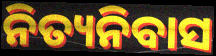
ନିତ୍ୟନିବାସ